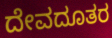
ದೇವದೂತರ